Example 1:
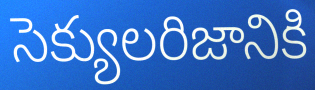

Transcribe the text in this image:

సెక్యులరిజానికి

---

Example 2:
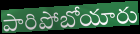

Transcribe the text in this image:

పారిపోబోయారు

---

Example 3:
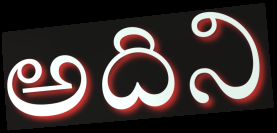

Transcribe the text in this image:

అదిని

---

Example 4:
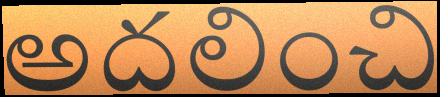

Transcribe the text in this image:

అదలించి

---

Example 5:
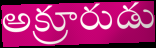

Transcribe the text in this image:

అక్రూరుడు